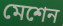
মেশেন